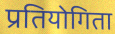
प्रतियोगिता